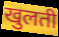
खुलती